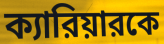
ক্যারিয়ারকে